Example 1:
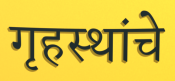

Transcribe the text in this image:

गृहस्थांचे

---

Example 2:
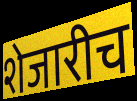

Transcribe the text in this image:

शेजारीच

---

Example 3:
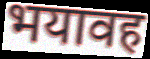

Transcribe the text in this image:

भयावह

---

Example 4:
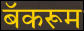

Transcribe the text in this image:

बॅकरूम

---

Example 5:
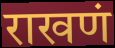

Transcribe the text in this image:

राखणं